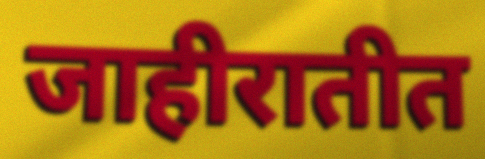
जाहीरातीत